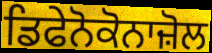
ਡਿਫੇਨੋਕੋਨਾਜ਼ੋਲ